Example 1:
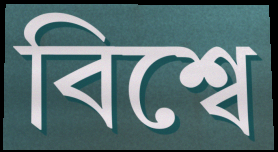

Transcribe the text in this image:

বিশ্বে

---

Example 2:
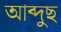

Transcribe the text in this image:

আব্দুছ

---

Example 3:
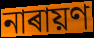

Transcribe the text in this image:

নাৰায়ণ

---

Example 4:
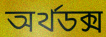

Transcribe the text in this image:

অৰ্থডক্স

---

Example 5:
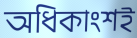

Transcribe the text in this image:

অধিকাংশই